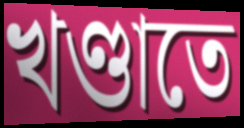
খণ্ডাতে